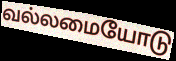
வல்லமையோடு